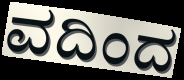
ವದಿಂದ